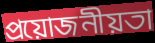
প্রয়োজনীয়তা